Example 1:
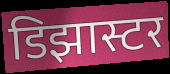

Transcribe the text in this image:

डिझास्टर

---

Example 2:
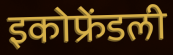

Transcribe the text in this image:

इकोफ्रेंडली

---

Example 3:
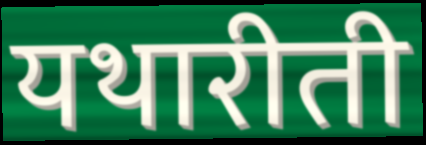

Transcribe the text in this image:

यथारीती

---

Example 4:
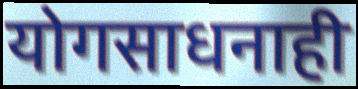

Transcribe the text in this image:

योगसाधनाही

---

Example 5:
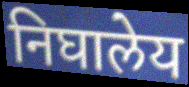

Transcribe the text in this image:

निघालेय